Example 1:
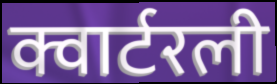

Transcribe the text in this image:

क्वार्टरली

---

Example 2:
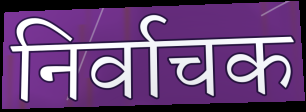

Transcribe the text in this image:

निर्वाचक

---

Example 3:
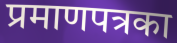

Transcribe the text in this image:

प्रमाणपत्रका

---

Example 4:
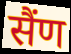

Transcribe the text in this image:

सैंण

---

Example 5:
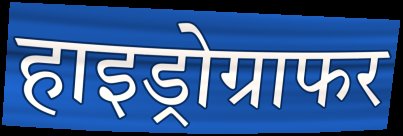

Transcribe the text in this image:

हाइड्रोग्राफर